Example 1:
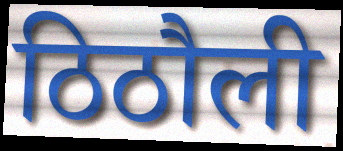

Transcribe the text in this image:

ठिठौली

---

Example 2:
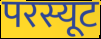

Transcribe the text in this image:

परस्यूट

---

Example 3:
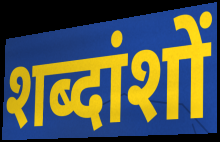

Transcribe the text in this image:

शब्दांशों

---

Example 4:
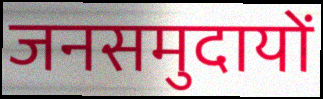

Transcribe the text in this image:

जनसमुदायों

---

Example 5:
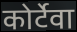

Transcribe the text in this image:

कोर्टेवा